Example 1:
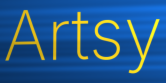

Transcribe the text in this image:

Artsy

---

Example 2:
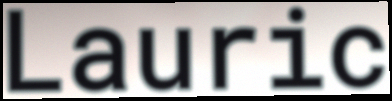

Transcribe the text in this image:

Lauric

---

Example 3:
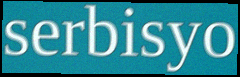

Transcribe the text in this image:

serbisyo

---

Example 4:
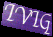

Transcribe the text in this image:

IVIG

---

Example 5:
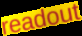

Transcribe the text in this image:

readout